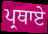
ਪ੍ਰਥਾਏ